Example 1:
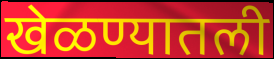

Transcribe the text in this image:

खेळण्यातली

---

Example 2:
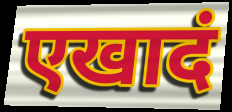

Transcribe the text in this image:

एखादं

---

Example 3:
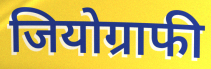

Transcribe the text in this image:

जियोग्राफी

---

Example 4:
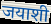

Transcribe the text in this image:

जयाशी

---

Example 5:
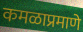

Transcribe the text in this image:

कमळाप्रमाणे